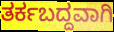
ತರ್ಕಬದ್ದವಾಗಿ